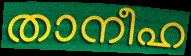
താനീഹ